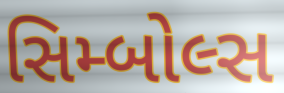
સિમ્બોલ્સ